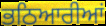
ਭਠਿਆਰੀਆਂ